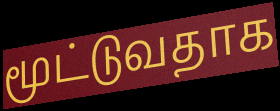
மூட்டுவதாக